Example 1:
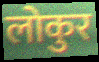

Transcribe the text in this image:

लोकुर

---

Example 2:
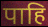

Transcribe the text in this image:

पाहि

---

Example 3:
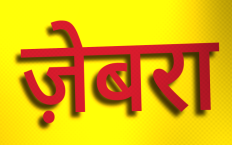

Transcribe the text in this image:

ज़ेबरा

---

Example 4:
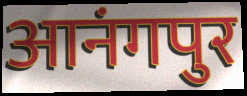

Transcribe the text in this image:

आनंगपुर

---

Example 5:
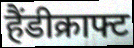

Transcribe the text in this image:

हैंडीक्राफ्ट